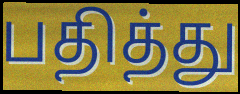
பதித்து